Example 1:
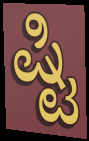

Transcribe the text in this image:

ಷ್ಟಿ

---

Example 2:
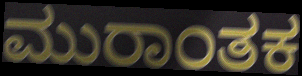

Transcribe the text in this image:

ಮುರಾಂತಕ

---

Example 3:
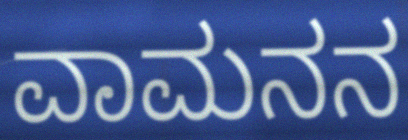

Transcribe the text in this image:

ವಾಮನನ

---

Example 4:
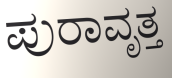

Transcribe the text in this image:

ಪುರಾವೃತ್ತ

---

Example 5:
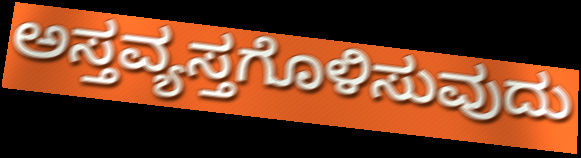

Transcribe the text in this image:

ಅಸ್ತವ್ಯಸ್ತಗೊಳಿಸುವುದು